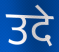
उदे